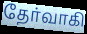
தேர்வாகி